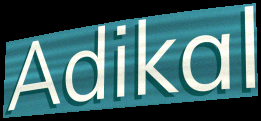
Adikal